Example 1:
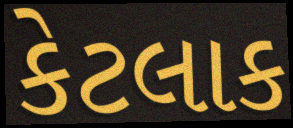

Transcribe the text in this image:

કેટલાક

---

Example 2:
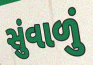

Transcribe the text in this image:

સુંવાળું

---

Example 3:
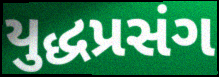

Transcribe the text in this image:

યુદ્ધપ્રસંગ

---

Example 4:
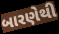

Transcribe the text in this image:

બારણેથી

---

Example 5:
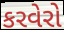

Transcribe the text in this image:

કરવેરો